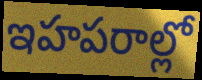
ఇహపరాల్లో